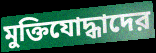
মুক্তিযোদ্ধাদের